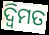
ଦ୍ୱିମତ